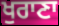
ਖੁਰਾਣਾ